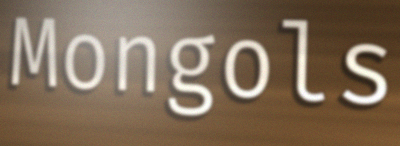
Mongols